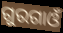
ଗୁରଗାଓଁ